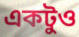
একটুও